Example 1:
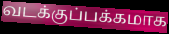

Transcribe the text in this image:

வடக்குப்பக்கமாக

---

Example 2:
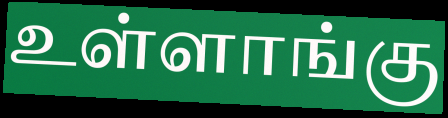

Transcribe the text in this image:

உள்ளாங்கு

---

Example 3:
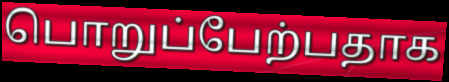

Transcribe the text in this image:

பொறுப்பேற்பதாக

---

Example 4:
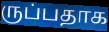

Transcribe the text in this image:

ருப்பதாக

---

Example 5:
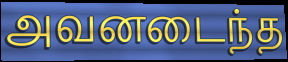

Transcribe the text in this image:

அவனடைந்த